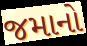
જમાનો